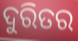
ଦୁରିତର